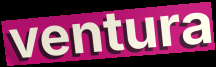
ventura